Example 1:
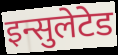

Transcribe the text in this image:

इन्सुलेटेड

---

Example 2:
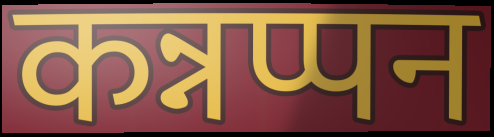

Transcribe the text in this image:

कन्नप्पन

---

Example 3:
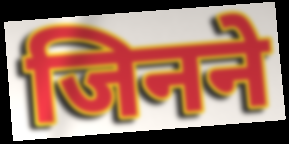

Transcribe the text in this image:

जिनने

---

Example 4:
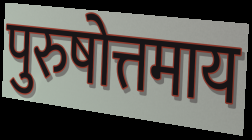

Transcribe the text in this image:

पुरुषोत्तमाय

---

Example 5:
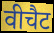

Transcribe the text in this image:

वीचैट